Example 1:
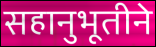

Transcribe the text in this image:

सहानुभूतीने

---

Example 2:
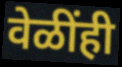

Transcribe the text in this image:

वेळींही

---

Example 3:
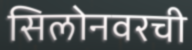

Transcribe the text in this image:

सिलोनवरची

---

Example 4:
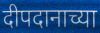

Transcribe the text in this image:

दीपदानाच्या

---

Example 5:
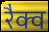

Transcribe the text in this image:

रैक्व